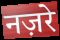
नज़रे